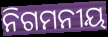
ନିଗମନୀୟ